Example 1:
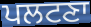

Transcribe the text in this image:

ਪਲਟਣਾ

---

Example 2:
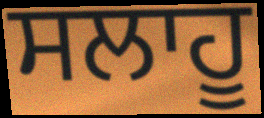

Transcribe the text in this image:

ਸਲਾਹੂ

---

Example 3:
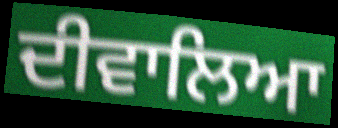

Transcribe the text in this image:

ਦੀਵਾਲਿਆ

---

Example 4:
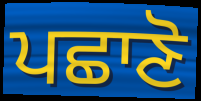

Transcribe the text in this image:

ਪਛਾਣੋ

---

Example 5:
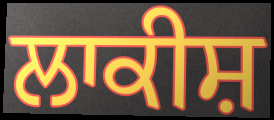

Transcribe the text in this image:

ਲਾਕੀਸ਼